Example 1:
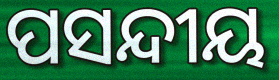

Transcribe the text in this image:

ପସନ୍ଦୀୟ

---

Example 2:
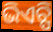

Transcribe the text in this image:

ଭିଏଚ୍ପି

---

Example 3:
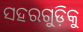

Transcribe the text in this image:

ସହରଗୁଡ଼ିକୁ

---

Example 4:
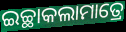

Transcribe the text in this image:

ଇଚ୍ଛାକଲାମାତ୍ରେ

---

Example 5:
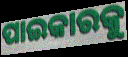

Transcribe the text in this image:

ପାଇକାରକୁ